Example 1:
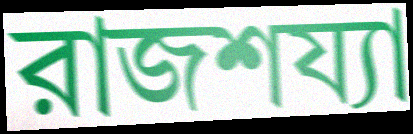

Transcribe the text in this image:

রাজশয্যা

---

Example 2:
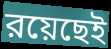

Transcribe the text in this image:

রয়েছেই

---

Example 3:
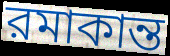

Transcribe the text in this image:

রমাকান্ত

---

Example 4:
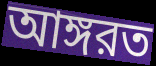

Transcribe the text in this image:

আঙ্গরত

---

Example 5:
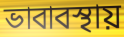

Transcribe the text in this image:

ভাবাবস্থায়